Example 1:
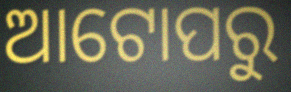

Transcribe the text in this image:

ଆଟୋପରୁ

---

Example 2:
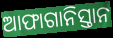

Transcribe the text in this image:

ଆଫାଗାନିସ୍ତାନ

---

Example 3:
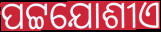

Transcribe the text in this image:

ପଟ୍ଟଯୋଶୀଏ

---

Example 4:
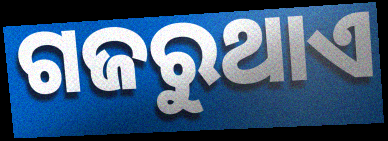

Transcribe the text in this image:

ଗଜରୁଥାଏ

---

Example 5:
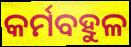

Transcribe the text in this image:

କର୍ମବହୁଳ